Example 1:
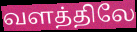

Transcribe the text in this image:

வளத்திலே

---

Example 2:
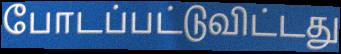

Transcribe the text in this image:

போடப்பட்டுவிட்டது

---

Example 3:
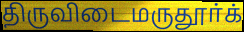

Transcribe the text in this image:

திருவிடைமருதூர்க்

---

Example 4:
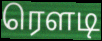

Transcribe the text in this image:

ரெளடி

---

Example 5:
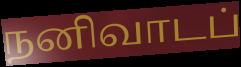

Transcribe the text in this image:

நனிவாடப்